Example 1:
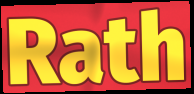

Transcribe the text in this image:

Rath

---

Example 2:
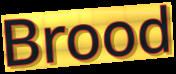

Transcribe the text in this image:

Brood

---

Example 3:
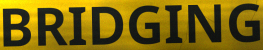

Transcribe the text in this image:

BRIDGING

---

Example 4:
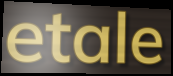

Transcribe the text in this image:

etale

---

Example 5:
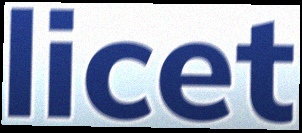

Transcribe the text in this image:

licet